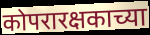
कोपरारक्षकाच्या